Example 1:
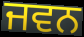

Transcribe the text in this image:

ਜਵਨ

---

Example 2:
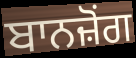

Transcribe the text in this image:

ਬਾਨਜ਼ੋਂਗ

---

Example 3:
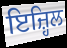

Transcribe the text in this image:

ਇਜ਼੍ਹਿਲ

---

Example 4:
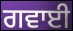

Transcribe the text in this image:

ਗਵਾਈ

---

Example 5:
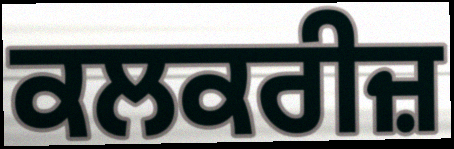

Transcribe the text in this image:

ਕਲਕਰੀਜ਼